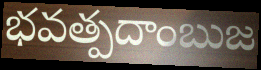
భవత్పదాంబుజ